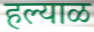
हल्याळ